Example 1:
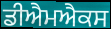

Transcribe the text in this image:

ਡੀਐਮਐਕਸ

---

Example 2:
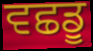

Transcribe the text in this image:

ਵਛਡੂ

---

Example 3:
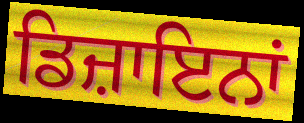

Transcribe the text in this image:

ਡਿਜ਼ਾਇਨਾਂ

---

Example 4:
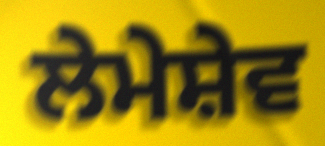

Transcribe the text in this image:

ਲੇਮੇਸ਼ੇਵ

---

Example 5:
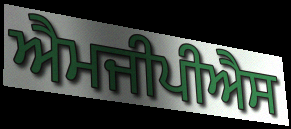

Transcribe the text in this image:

ਐਮਜੀਪੀਐਸ